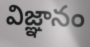
విజ్ఞానం